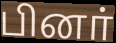
பினர்